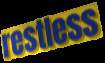
restless